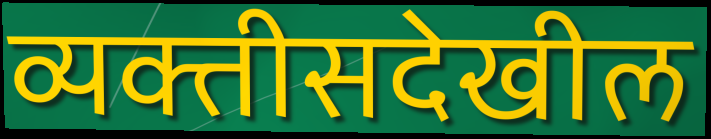
व्यक्तीसदेखील